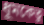
ধূমকেতু